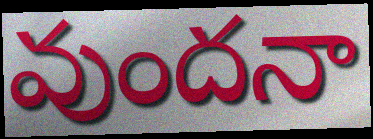
వుందనా